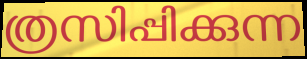
ത്രസിപ്പിക്കുന്ന